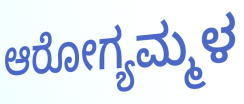
ಆರೋಗ್ಯಮ್ಮಳ